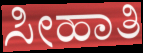
ಸೀಹಾತಿ